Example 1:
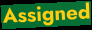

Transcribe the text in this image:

Assigned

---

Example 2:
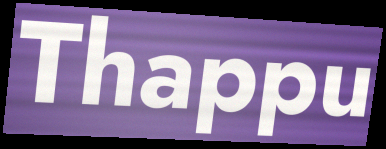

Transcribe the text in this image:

Thappu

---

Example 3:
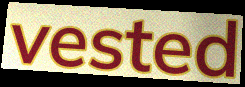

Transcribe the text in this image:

vested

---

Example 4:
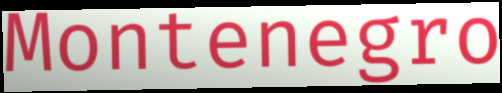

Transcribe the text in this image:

Montenegro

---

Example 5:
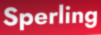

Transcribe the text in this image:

Sperling